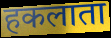
हकलाता